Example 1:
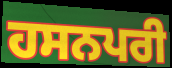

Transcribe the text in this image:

ਹਸਨਪਰੀ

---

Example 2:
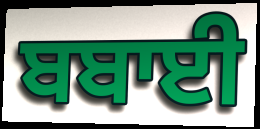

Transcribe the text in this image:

ਬਬਾਈ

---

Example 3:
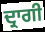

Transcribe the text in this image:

ਦ੍ਰਾਗੀ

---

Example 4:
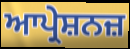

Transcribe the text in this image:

ਆਪ੍ਰੇਸ਼ਨਜ਼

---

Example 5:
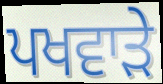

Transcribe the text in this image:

ਪਖਵਾੜੇ